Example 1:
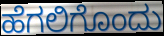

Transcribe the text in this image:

ಹೆಗಲಿಗೊಂದು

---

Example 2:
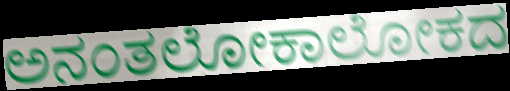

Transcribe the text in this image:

ಅನಂತಲೋಕಾಲೋಕದ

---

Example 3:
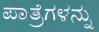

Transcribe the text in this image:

ಪಾತ್ರೆಗಳನ್ನು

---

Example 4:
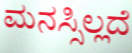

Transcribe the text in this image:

ಮನಸ್ಸಿಲ್ಲದೆ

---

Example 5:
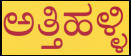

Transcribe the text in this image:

ಅತ್ತಿಹಳ್ಳಿ